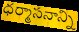
ధర్మాసనాన్ని